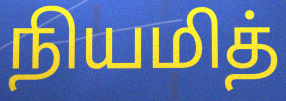
நியமித்